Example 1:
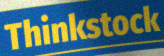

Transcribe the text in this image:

Thinkstock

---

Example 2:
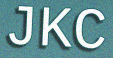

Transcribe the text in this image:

JKC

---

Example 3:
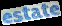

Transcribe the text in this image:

estate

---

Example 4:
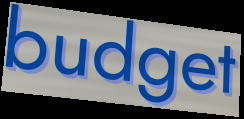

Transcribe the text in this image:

budget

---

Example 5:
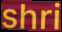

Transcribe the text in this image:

shri